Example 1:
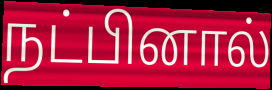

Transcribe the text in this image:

நட்பினால்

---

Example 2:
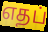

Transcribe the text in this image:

எதப்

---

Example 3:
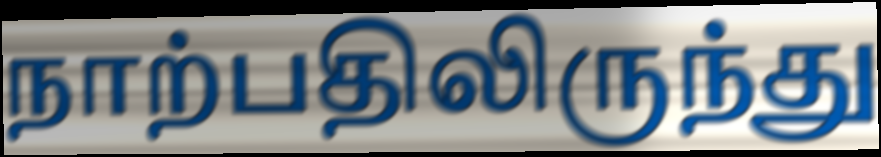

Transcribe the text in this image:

நாற்பதிலிருந்து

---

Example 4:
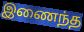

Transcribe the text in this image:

இணைந்த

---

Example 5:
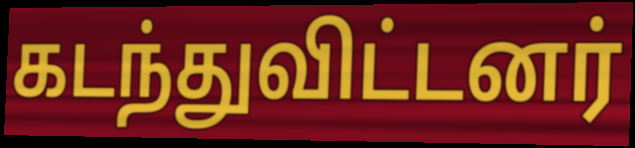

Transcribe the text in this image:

கடந்துவிட்டனர்